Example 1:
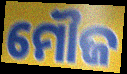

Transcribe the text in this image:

ମୌଜ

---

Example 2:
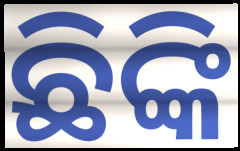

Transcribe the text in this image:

ଛିଙ୍କି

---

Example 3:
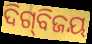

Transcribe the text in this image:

ଦିଗ୍‍ବିଜୟ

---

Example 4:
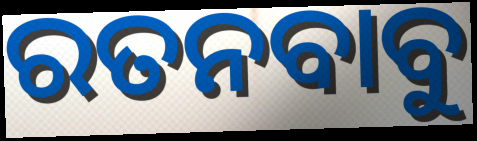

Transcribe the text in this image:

ରତନବାବୁ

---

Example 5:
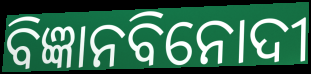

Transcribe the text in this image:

ବିଜ୍ଞାନବିନୋଦୀ